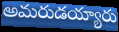
అమరుడయ్యారు